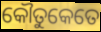
କୌତୁକେତେ